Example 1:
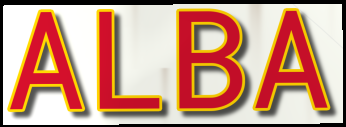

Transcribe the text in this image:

ALBA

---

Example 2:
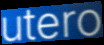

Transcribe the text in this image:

utero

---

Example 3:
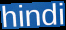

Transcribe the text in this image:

hindi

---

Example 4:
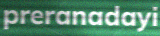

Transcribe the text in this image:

preranadayi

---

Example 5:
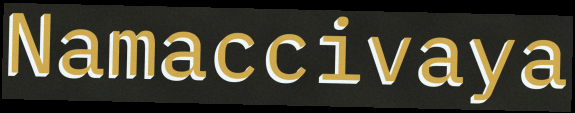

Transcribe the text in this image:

Namaccivaya